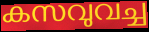
കസവുവച്ച